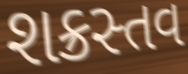
શક્રસ્તવ